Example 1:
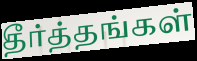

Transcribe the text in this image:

தீர்த்தங்கள்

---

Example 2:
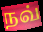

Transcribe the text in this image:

நவ்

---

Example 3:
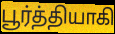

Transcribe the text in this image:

பூர்த்தியாகி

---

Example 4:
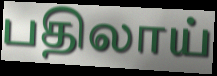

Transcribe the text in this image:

பதிலாய்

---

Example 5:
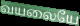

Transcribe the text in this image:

வயலையே